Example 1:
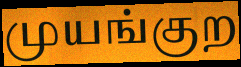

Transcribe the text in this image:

முயங்குற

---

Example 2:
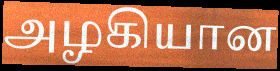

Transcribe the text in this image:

அழகியான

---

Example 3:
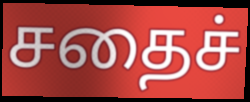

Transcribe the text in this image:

சதைச்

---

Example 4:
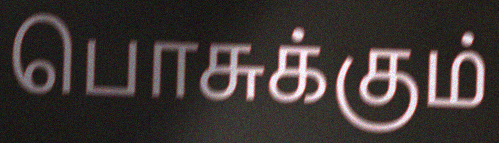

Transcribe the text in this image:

பொசுக்கும்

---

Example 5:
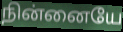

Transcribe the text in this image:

நின்னையே